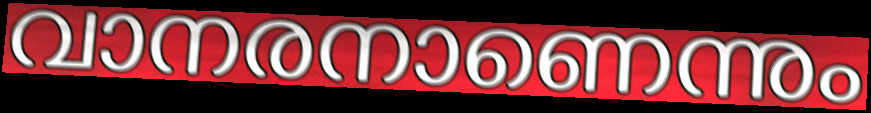
വാനരനാണെന്നും